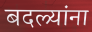
बदल्यांना